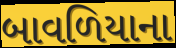
બાવળિયાના